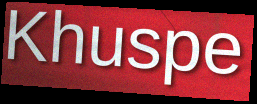
Khuspe